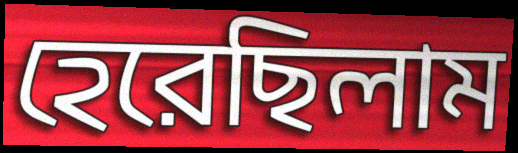
হেরেছিলাম